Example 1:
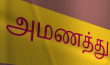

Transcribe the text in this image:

அமணத்து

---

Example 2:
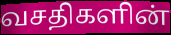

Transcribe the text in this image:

வசதிகளின்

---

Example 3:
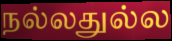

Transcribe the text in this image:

நல்லதுல்ல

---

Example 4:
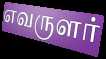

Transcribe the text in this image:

எவருளர்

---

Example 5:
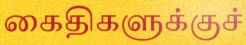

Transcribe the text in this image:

கைதிகளுக்குச்